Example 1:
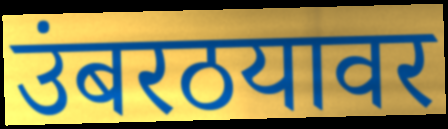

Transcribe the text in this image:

उंबरठयावर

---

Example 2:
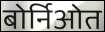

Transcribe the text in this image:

बोर्निओत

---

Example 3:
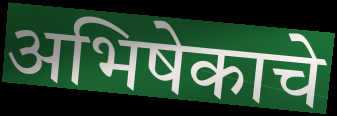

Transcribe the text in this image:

अभिषेकाचे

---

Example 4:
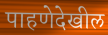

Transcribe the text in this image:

पाहणेदेखील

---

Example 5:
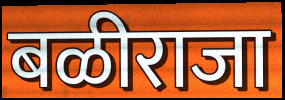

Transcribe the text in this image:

बळीराजा